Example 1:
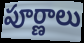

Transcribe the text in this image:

పూర్ణాలు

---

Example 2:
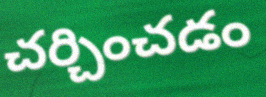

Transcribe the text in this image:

చర్చించడం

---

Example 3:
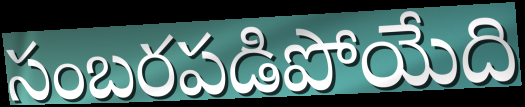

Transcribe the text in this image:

సంబరపడిపోయేది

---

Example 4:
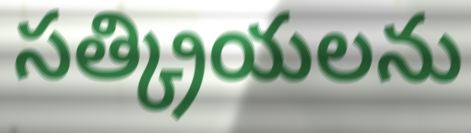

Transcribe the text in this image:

సత్క్రియలను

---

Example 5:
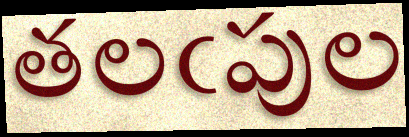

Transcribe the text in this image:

తలఁపుల